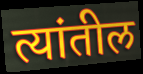
त्यांतील